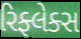
રિફ્લેક્સ